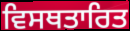
ਵਿਸਥਤਾਰਿਤ